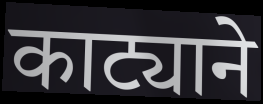
काट्याने